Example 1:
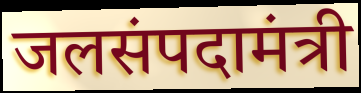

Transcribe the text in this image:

जलसंपदामंत्री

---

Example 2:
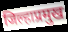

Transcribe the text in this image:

जिल्हाप्रमुख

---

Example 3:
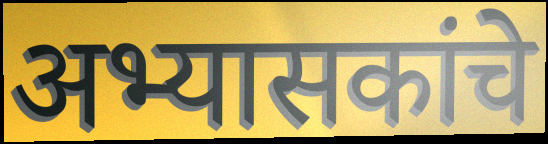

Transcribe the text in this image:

अभ्यासकांचे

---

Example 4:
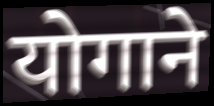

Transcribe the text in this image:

योगाने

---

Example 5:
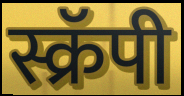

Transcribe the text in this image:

स्क्रॅपी